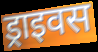
ड्राइवस